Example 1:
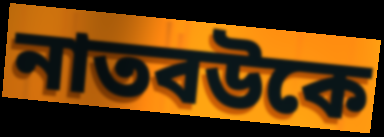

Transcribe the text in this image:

নাতবউকে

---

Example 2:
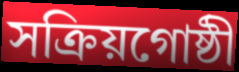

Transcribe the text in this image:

সক্রিয়গোষ্ঠী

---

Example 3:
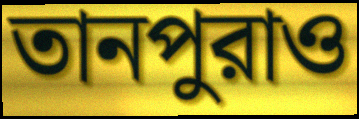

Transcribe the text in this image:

তানপুরাও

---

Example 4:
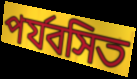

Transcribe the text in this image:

পর্যবসিত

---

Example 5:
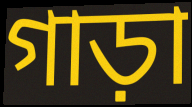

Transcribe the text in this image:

গাড়া